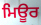
ਮਿਊਰ